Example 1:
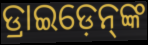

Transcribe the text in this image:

ଡ୍ରାଇଡ଼େନ୍‌ଙ୍କ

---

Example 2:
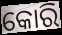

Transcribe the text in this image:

କୋରି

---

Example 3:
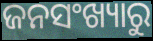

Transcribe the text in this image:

ଜନସଂଖ୍ୟାରୁ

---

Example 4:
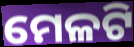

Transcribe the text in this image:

ମେଳଟି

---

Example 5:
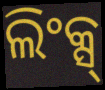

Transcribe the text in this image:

ଲିଂକ୍ସ୍